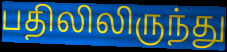
பதிலிலிருந்து